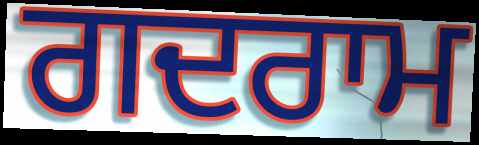
ਗਦਰਾਮ